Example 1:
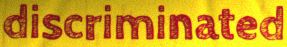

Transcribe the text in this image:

discriminated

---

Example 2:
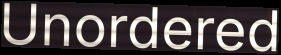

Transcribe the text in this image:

Unordered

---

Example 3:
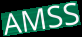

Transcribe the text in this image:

AMSS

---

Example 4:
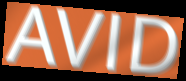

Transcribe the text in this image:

AVID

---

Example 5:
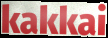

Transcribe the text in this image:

kakkai